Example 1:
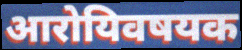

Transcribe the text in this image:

आरोयिवषयक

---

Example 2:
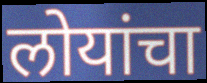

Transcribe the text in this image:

लोयांचा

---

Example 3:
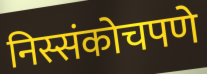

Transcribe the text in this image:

निस्संकोचपणे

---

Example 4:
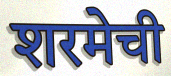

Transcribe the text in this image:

शरमेची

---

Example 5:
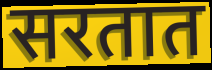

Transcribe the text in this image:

सरतात